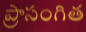
ప్రాసంగిత